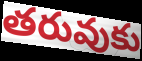
తరువుకు